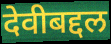
देवीबद्दल